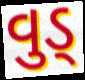
વુડ્